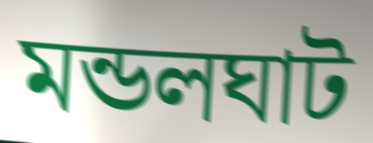
মন্ডলঘাট